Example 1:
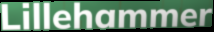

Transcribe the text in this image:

Lillehammer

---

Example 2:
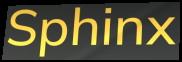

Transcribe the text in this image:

Sphinx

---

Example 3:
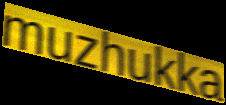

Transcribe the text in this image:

muzhukka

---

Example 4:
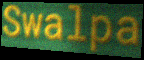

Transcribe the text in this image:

Swalpa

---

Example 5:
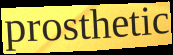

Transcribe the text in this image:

prosthetic